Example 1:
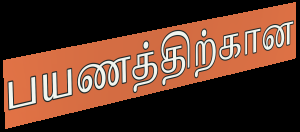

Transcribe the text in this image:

பயணத்திற்கான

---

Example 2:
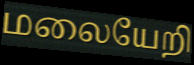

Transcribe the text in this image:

மலையேறி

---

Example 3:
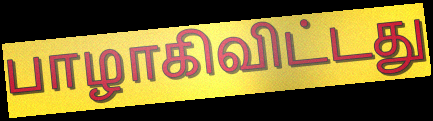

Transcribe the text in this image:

பாழாகிவிட்டது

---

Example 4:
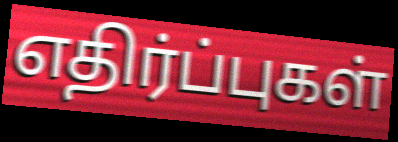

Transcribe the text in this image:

எதிர்ப்புகள்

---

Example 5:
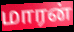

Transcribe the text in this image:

மாரன்